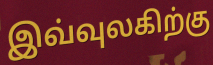
இவ்வுலகிற்கு